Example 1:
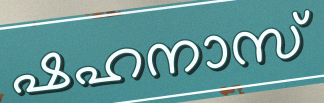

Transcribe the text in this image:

ഷഹനാസ്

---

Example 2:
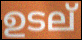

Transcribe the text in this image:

ഉടല്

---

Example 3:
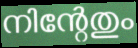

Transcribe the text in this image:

നിന്റേതും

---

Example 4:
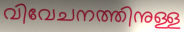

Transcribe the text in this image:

വിവേചനത്തിനുള്ള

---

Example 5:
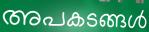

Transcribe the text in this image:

അപകടങ്ങൾ